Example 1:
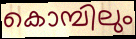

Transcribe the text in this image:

കൊമ്പിലും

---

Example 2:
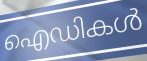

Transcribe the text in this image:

ഐഡികൾ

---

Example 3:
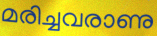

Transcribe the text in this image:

മരിച്ചവരാണു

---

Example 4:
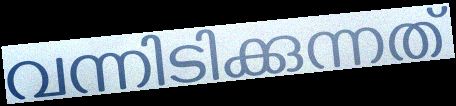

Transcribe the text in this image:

വന്നിടിക്കുന്നത്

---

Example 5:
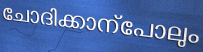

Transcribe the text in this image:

ചോദിക്കാന്പോലും